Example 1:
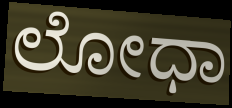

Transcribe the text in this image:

ಲೋಧಾ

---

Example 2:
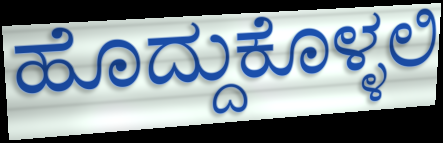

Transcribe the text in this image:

ಹೊದ್ದುಕೊಳ್ಳಲಿ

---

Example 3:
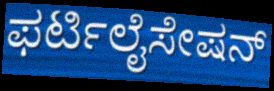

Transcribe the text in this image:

ಫರ್ಟಿಲೈಸೇಷನ್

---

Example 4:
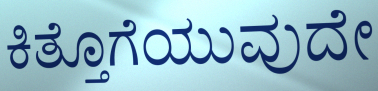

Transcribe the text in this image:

ಕಿತ್ತೊಗೆಯುವುದೇ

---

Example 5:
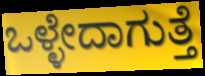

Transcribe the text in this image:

ಒಳ್ಳೇದಾಗುತ್ತೆ